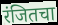
रंजितचा